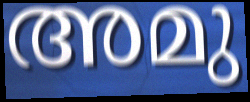
അമു